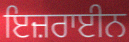
ਇਜ਼ਰਾਈਨ